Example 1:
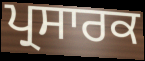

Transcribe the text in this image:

ਪ੍ਰਸਾਰਕ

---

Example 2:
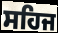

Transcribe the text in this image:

ਸਹਿਜ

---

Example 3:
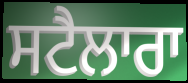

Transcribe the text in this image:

ਸਟੈਲਾਰਾ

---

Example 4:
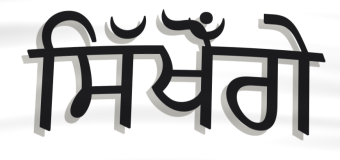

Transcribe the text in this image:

ਸਿੱਖੋਁਗੇ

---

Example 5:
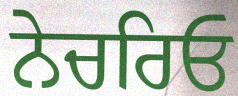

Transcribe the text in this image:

ਨੇਚਰਿਓ